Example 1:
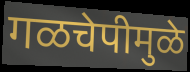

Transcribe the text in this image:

गळचेपीमुळे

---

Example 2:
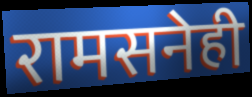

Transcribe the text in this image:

रामसनेही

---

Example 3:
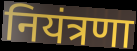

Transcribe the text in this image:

नियंत्रणा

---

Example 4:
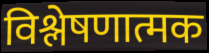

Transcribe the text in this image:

विश्लेषणात्मक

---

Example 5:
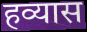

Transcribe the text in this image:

हव्यास